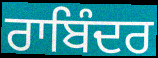
ਰਾਬਿੰਦਰ